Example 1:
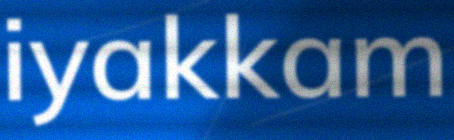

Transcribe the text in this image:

iyakkam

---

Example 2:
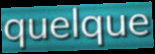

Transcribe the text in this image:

quelque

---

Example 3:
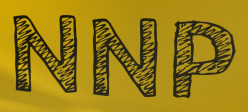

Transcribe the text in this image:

NNP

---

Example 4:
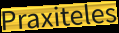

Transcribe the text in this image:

Praxiteles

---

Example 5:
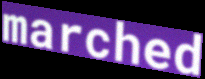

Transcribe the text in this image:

marched